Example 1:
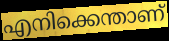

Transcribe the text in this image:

എനിക്കെന്താണ്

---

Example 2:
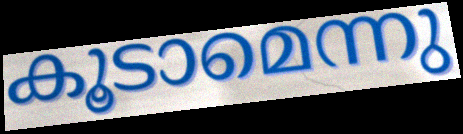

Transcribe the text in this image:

കൂടാമെന്നു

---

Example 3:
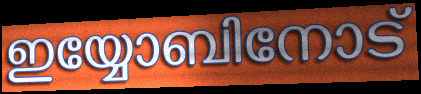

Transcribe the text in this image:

ഇയ്യോബിനോട്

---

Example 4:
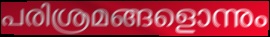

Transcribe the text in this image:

പരിശ്രമങ്ങളൊന്നും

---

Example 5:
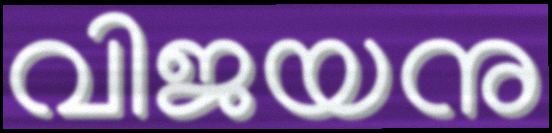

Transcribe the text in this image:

വിജയനു